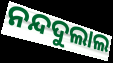
ନନ୍ଦଦୁଲାଲ